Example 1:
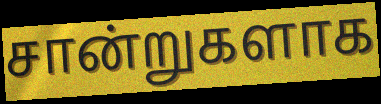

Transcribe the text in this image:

சான்றுகளாக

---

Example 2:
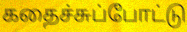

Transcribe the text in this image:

கதைச்சுப்போட்டு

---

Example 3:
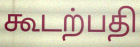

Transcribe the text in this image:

கூடற்பதி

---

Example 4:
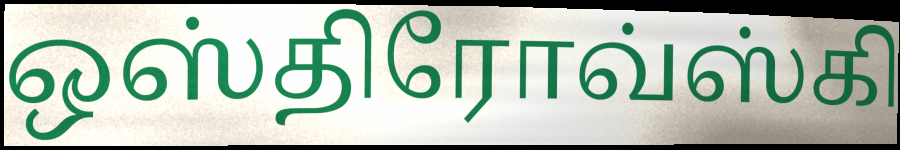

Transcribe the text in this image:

ஒஸ்திரோவ்ஸ்கி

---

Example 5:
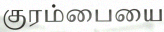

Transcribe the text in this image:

குரம்பையை